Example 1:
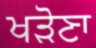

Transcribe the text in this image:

ਖੜੋਣਾ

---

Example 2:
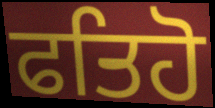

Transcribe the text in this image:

ਫਤਿਹੋ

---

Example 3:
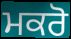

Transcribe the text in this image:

ਮਕਰੋ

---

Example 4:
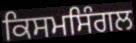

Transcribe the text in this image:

ਕਿਸਮਸਿੰਗਲ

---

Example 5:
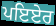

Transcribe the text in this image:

ਪਇਏਰ